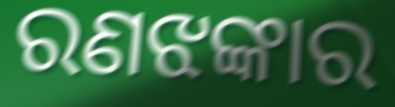
ରଣଝଙ୍କାର